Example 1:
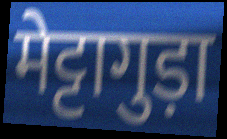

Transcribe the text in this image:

मेट्टागुड़ा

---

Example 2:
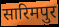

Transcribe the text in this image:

सारिमपुर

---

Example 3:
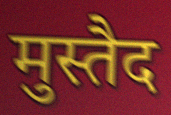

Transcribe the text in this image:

मुस्तैद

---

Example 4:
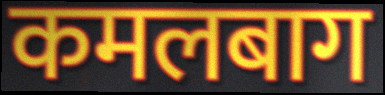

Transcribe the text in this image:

कमलबाग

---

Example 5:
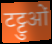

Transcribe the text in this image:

टट्टुओं